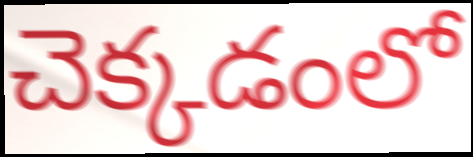
చెక్కడంలో